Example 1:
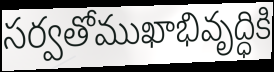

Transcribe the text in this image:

సర్వతోముఖాభివృద్ధికి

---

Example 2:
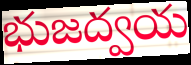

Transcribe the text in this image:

భుజద్వయ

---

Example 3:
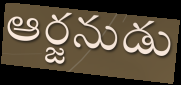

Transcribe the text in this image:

ఆర్జనుడు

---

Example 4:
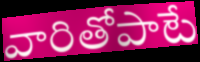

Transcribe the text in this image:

వారితోపాటే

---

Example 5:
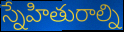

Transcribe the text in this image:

స్నేహితురాల్ని